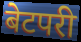
बेटपरी